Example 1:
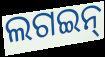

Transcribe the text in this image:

ଲଗଇନ୍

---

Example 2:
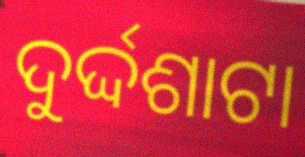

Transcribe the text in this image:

ଦୁର୍ଦ୍ଦଶାଟା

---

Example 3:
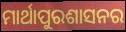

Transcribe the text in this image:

ମାର୍ଥାପୁରଶାସନର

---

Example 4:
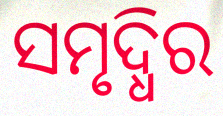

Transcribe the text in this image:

ସମୃଦ୍ଧିର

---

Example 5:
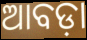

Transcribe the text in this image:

ଆବଡ଼ା